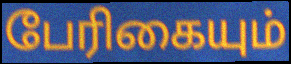
பேரிகையும்